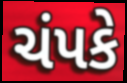
ચંપકે